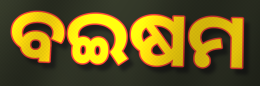
ବଇଷମ